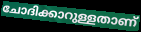
ചോദിക്കാറുള്ളതാണ്